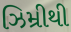
ઝિમ્રીથી